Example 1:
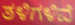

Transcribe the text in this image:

ತಳಿಗಳಿವೆ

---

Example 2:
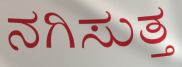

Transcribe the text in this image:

ನಗಿಸುತ್ತ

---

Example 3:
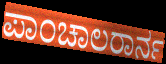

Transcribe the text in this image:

ಪಾಂಚಾಲರಾರ್ನ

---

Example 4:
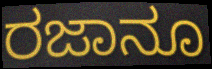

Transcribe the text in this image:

ರಜಾನೂ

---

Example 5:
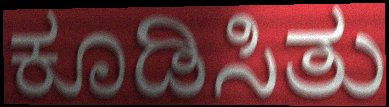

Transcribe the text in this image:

ಕೂಡಿಸಿತು